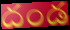
దండ